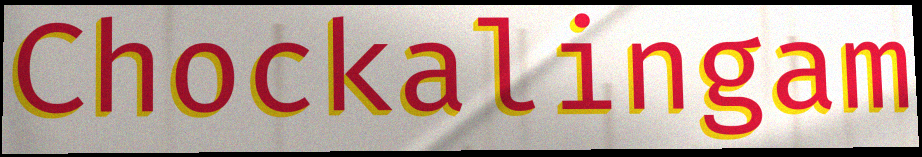
Chockalingam